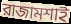
রাজামশাই